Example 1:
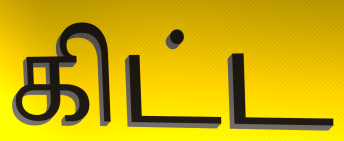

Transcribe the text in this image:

கிட்ட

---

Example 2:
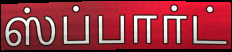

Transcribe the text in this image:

ஸ்ப்பார்ட்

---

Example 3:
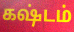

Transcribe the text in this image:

கஷ்டம்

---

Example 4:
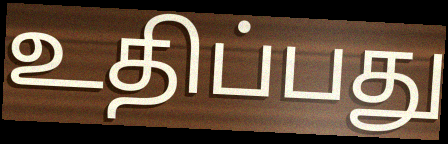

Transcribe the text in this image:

உதிப்பது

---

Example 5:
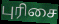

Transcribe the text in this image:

புரிசை